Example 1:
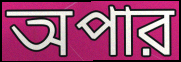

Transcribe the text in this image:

অপার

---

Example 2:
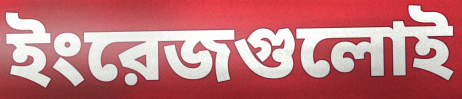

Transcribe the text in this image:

ইংরেজগুলোই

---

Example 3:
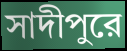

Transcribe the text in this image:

সাদীপুরে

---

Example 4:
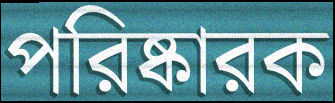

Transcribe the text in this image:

পরিষ্কারক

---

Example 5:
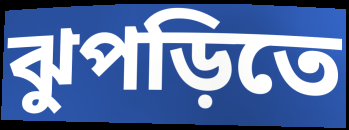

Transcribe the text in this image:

ঝুপড়িতে